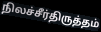
நிலச்சீர்திருத்தம்